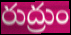
రుద్రుం